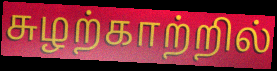
சுழற்காற்றில்